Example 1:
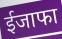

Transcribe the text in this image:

ईजाफा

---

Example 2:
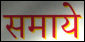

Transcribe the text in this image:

समाये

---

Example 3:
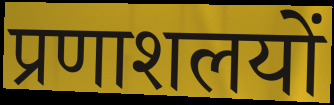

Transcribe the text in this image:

प्रणाशलयों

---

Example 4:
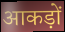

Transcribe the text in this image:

आकड़ों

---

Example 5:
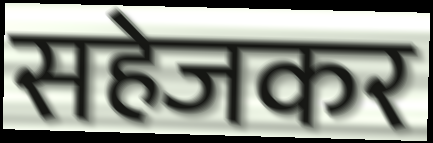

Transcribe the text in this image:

सहेजकर